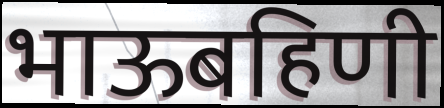
भाऊबहिणी